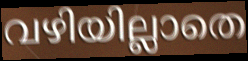
വഴിയില്ലാതെ